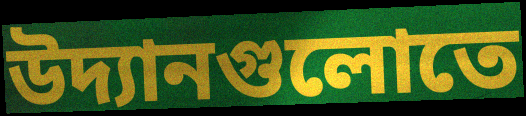
উদ্যানগুলোতে